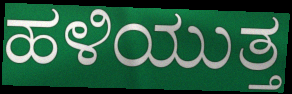
ಹಳಿಯುತ್ತ